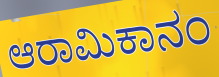
ಆರಾಮಿಕಾನಂ